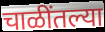
चाळींतल्या